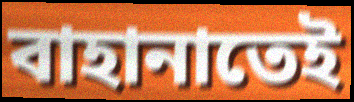
বাহানাতেই